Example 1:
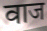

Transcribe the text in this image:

वाज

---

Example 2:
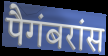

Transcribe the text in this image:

पैगंबरांस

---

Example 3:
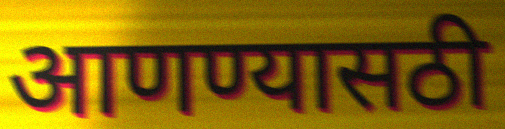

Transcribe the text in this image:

आणण्यासठी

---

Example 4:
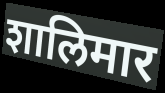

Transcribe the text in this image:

शालिमार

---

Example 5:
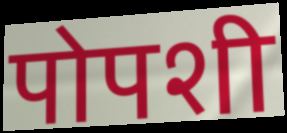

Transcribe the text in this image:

पोपशी